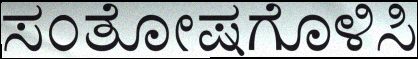
ಸಂತೋಷಗೊಳಿಸಿ